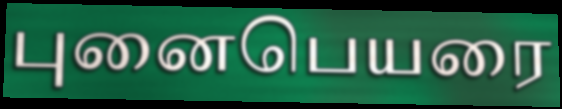
புனைபெயரை